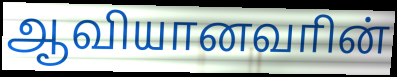
ஆவியானவரின்